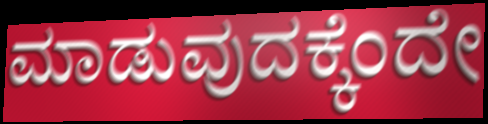
ಮಾಡುವುದಕ್ಕೆಂದೇ